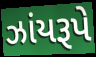
ઝાંયરૂપે